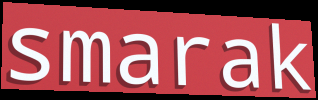
smarak